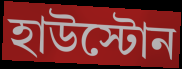
হাউস্টোন